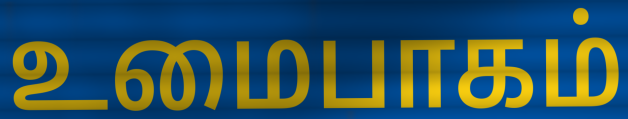
உமைபாகம்